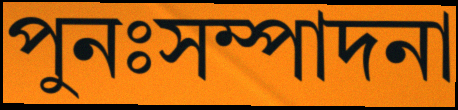
পুনঃসম্পাদনা